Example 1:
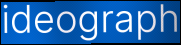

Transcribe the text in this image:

ideograph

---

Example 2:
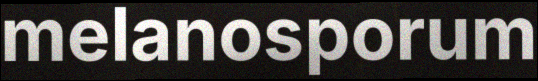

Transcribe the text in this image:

melanosporum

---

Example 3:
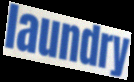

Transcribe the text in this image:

laundry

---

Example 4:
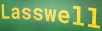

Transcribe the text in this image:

Lasswell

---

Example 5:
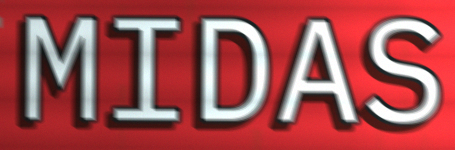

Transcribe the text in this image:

MIDAS